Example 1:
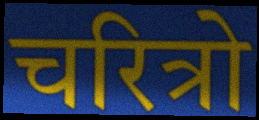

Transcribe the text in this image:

चरित्रो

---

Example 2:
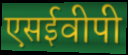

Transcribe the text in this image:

एसईवीपी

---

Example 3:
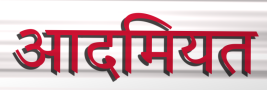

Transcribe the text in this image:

आदमियत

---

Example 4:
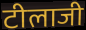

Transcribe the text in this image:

टीलाजी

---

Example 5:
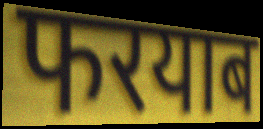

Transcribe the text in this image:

फरयाब